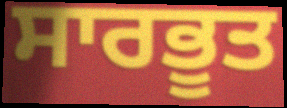
ਸਾਰਭੂਤ